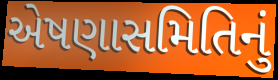
એષણાસમિતિનું